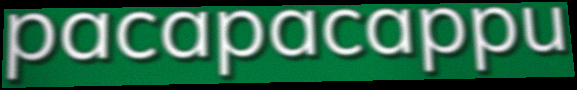
pacapacappu